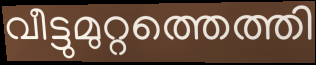
വീട്ടുമുറ്റത്തെത്തി